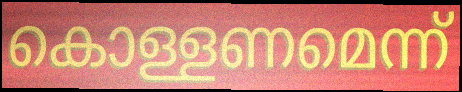
കൊള്ളണമെന്ന്